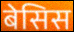
बेसिस